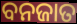
ବନଜାତ